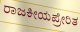
ರಾಜಕೀಯಪ್ರೇರಿತ